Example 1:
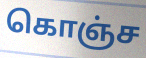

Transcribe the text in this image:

கொஞ்ச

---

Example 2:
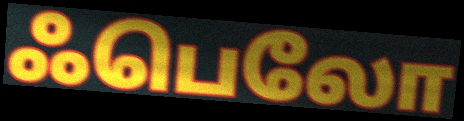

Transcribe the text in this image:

ஃபெலோ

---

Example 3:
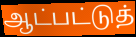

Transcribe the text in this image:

ஆட்பட்டுத்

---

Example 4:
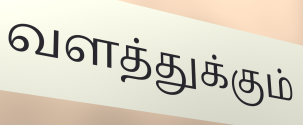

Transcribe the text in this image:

வளத்துக்கும்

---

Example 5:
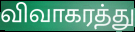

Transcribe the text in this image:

விவாகரத்து